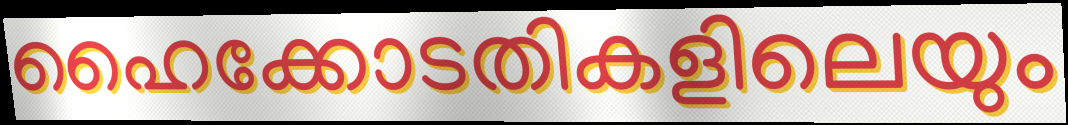
ഹൈക്കോടതികളിലെയും